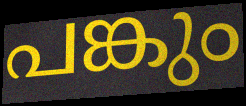
പങ്കും